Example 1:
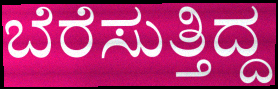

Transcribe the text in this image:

ಬೆರೆಸುತ್ತಿದ್ದ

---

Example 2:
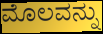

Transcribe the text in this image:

ಮೊಲವನ್ನು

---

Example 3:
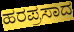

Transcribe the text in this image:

ಹರಪ್ರಸಾದ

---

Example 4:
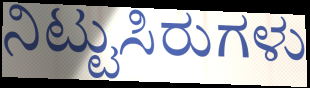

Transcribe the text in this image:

ನಿಟ್ಟುಸಿರುಗಳು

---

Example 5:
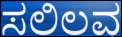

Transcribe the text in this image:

ಸಲಿಲವ